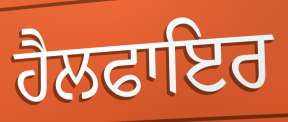
ਹੈਲਫਾਇਰ